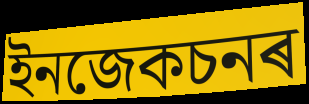
ইনজেকচনৰ